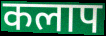
कलाप